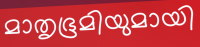
മാതൃഭൂമിയുമായി